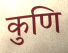
कुणि